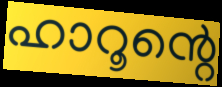
ഹാറൂന്റെ